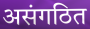
असंगठित